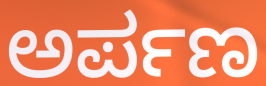
ಅರ್ಪಣ